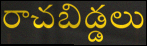
రాచబిడ్డలు